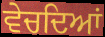
ਵੇਚਦਿਆਂ